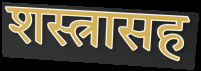
शस्त्रासह